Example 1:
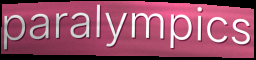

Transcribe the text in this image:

paralympics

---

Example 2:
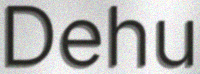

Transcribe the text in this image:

Dehu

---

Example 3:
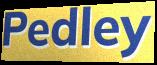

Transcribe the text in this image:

Pedley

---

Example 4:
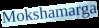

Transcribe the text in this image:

Mokshamarga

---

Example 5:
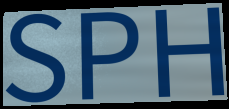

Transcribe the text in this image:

SPH